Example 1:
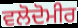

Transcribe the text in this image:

ਵਲੋਦੋਮੀਰ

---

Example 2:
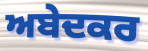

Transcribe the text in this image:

ਅਬੇਦਕਰ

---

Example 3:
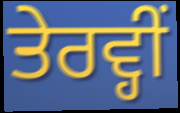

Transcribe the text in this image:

ਤੇਰਵ੍ਹੀਂ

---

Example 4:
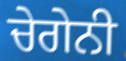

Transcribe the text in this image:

ਚੇਗੇਨੀ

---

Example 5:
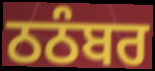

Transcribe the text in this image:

ਠਠੰਬਰ